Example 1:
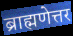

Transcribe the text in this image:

ब्राह्मणेत्तर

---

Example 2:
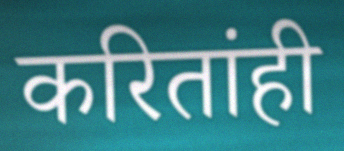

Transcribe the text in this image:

करितांही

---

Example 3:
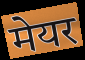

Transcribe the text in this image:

मेयर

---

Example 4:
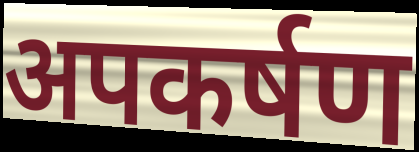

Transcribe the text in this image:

अपकर्षण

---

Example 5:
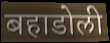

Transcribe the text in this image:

बहाडोली